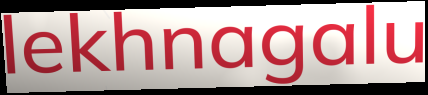
lekhnagalu